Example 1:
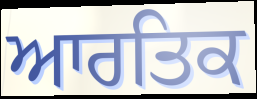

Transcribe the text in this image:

ਆਰਤਿਕ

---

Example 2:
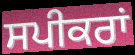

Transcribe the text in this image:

ਸਪੀਕਰਾਂ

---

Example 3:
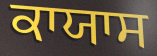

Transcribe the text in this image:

ਕਾਯਾਸ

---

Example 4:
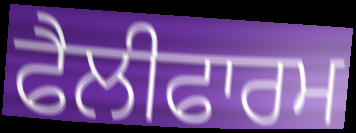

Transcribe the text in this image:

ਫੈਲੀਫਾਰਮ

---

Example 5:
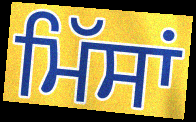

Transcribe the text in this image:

ਮਿੱਸਾਂ